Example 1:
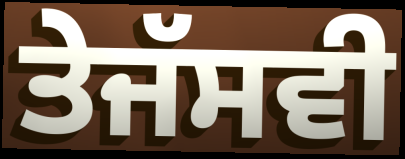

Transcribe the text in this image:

ਤੇਜੱਸਵੀ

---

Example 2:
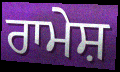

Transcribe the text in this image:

ਰਾਮੇਸ਼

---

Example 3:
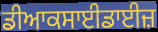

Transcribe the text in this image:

ਡੀਆਕਸਾਈਡਾਈਜ਼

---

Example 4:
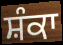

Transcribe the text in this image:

ਸ਼ੰਕਾ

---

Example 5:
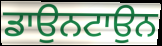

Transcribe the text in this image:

ਡਾਉਨਟਾਉਨ